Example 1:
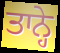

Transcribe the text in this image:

ਤਾਨ੍ਹੇ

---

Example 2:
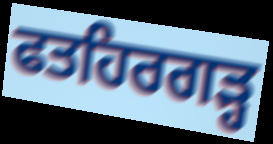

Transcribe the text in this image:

ਫਤਹਿਰਗੜ੍ਹ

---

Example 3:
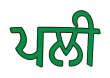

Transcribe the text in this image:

ਪਲੀ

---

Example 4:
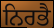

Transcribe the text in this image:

ਨਿਰਭੈ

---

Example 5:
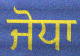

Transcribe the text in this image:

ਜੋਧਾ